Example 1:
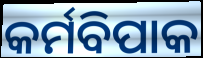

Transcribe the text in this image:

କର୍ମବିପାକ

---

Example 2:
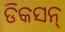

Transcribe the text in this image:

ଡିକସନ୍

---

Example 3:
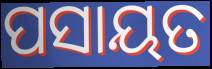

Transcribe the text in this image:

ପସାୟତ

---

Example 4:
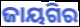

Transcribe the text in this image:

ଜାୟଗିର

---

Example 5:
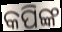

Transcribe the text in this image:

କପିଙ୍କ